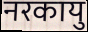
नरकायु